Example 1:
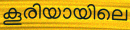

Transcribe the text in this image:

കൂരിയായിലെ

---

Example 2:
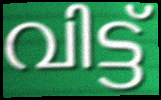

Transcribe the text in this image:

വിട്ട്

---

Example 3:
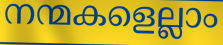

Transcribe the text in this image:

നന്മകളെല്ലാം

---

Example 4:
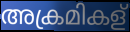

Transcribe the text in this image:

അക്രമികള്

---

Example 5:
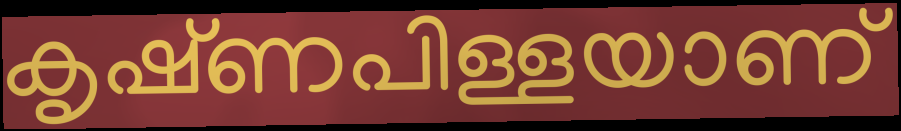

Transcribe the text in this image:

കൃഷ്‌ണപിള്ളയാണ്